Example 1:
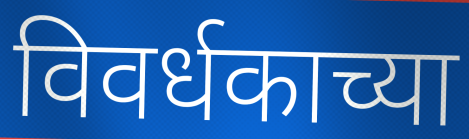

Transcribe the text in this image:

विवर्धकाच्या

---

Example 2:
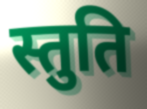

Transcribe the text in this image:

स्तुति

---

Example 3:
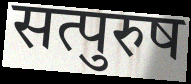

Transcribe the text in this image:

सत्पुरुष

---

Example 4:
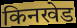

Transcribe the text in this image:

किनखेड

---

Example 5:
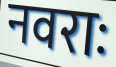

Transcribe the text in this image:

नवराः